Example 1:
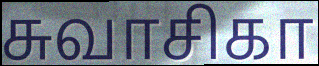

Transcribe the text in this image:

சுவாசிகா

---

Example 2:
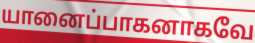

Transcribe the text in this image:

யானைப்பாகனாகவே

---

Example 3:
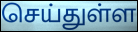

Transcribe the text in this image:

செய்துள்ள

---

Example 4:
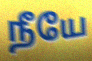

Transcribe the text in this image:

நீயே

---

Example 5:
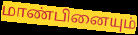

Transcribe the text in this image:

மாண்பினையும்